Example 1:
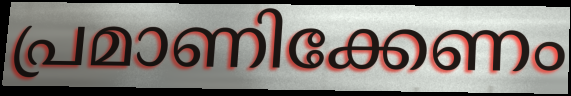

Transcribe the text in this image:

പ്രമാണിക്കേണം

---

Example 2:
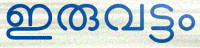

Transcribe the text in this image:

ഇരുവട്ടം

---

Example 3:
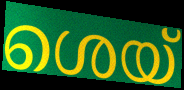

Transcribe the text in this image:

ശെയ്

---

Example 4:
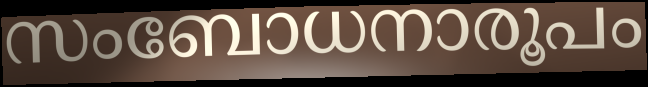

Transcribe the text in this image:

സംബോധനാരൂപം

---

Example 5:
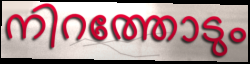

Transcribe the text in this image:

നിറത്തോടും